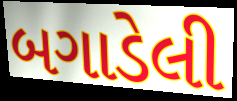
બગાડેલી